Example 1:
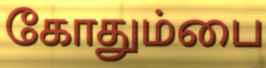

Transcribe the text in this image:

கோதும்பை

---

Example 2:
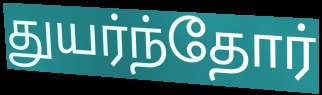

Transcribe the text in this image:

துயர்ந்தோர்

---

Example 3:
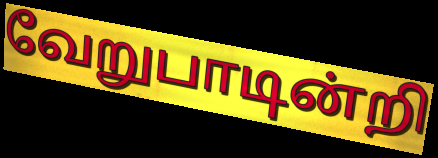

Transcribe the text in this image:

வேறுபாடின்றி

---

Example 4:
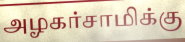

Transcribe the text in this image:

அழகர்சாமிக்கு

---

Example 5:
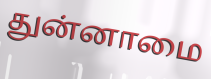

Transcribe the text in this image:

துன்னாமை